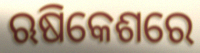
ଋଷିକେଶରେ